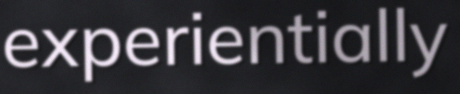
experientially